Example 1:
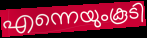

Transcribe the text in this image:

എന്നെയുംകൂടി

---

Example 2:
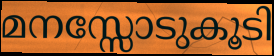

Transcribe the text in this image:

മനസ്സോടുകൂടി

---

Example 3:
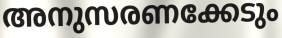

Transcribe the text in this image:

അനുസരണക്കേടും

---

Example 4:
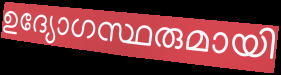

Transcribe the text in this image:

ഉദ്യോഗസ്ഥരുമായി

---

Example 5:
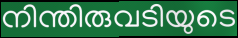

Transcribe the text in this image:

നിന്തിരുവടിയുടെ